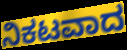
ನಿಕಟವಾದ